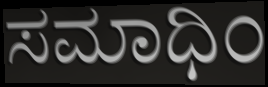
ಸಮಾಧಿಂ